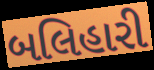
બલિહારી